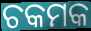
ଚକମକ